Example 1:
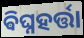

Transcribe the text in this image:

ଵିଘ୍ନହର୍ତ୍ତା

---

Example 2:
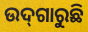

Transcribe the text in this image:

ଉଦ୍‌ଗାରୁଛି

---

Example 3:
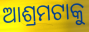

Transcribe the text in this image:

ଆଶ୍ରମଟାକୁ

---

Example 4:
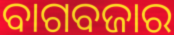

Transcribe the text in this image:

ବାଗବଜାର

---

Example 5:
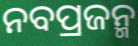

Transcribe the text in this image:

ନବପ୍ରଜନ୍ମ